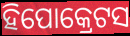
ହିପୋକ୍ରେଟସ